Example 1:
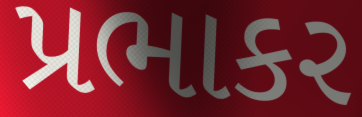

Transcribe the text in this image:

પ્રભાકર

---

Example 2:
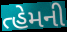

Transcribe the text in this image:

ત્હેમની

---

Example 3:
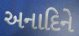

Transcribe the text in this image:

અનાદિને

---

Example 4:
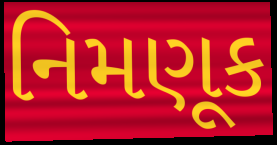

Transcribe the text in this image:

નિમણૂક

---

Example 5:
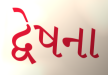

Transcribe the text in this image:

દ્વેષના